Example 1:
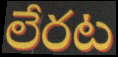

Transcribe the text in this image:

లేరట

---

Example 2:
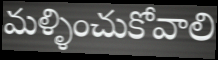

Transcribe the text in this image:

మళ్ళించుకోవాలి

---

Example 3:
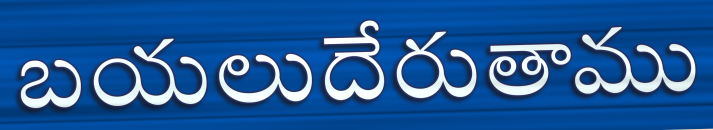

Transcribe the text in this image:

బయలుదేరుతాము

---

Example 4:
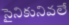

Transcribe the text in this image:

సైనికునివలే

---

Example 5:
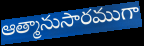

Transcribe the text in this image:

ఆత్మానుసారముగా